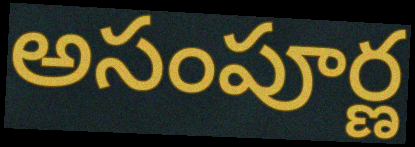
అసంపూర్ణ